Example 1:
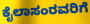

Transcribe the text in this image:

ಕೈಲಾಸಂರವರಿಗೆ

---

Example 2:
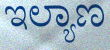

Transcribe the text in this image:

ಇಲ್ಯಾಣ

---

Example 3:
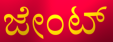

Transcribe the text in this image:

ಜೇಂಟ್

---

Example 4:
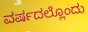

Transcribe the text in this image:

ವರ್ಷದಲ್ಲೊಂದು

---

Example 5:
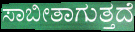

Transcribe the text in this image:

ಸಾಬೀತಾಗುತ್ತದೆ